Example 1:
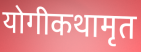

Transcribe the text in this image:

योगीकथामृत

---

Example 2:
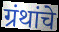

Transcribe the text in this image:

ग्रंथांचे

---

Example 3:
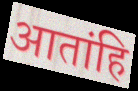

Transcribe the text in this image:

आतांहि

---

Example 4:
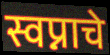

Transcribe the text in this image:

स्वप्नाचे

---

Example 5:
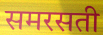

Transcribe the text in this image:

समरसती